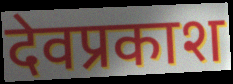
देवप्रकाश